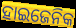
ହାଇଜେନିକ